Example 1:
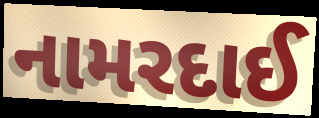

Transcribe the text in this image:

નામરદાઈ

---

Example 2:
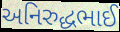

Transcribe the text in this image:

અનિરુદ્ધભાઈ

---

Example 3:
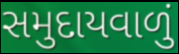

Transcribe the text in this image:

સમુદાયવાળું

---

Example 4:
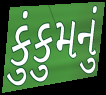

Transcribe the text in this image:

કુંકુમનું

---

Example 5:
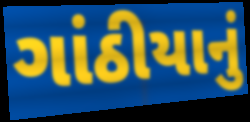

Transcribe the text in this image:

ગાંઠીયાનું